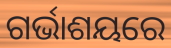
ଗର୍ଭାଶୟରେ